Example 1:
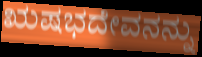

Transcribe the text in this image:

ಋಷಭದೇವನನ್ನು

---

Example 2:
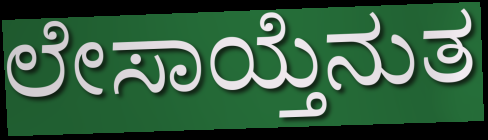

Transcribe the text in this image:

ಲೇಸಾಯ್ತೆನುತ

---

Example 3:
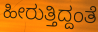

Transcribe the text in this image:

ಹೀರುತ್ತಿದ್ದಂತೆ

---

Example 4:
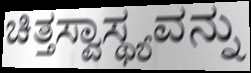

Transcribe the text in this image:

ಚಿತ್ತಸ್ವಾಸ್ಥ್ಯವನ್ನು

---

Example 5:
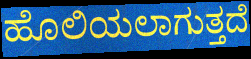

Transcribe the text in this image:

ಹೊಲಿಯಲಾಗುತ್ತದೆ